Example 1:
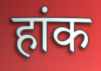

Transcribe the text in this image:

हांक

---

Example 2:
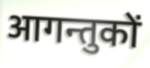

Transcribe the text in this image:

आगन्तुकों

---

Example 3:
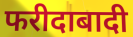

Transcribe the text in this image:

फरीदाबादी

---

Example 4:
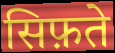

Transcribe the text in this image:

सिफ़ते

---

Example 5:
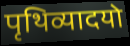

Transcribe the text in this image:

पृथिव्यादयो